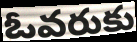
ఓవరుకు